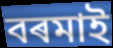
বৰমাই